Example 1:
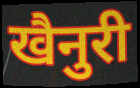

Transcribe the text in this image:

खैनुरी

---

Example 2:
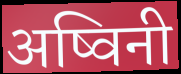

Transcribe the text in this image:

अष्विनी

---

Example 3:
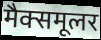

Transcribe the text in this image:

मैक्समूलर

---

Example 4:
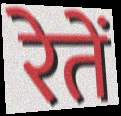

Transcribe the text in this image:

रेतें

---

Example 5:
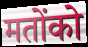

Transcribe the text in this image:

मतोंको